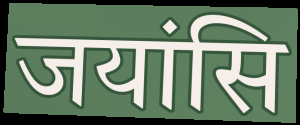
जयांसि